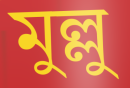
মুল্লু